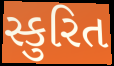
સ્કુરિત